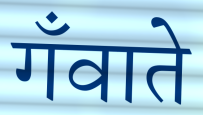
गँवाते